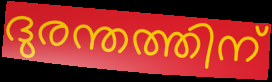
ദുരന്തത്തിന്